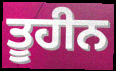
ਤੂਹੀਨ